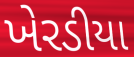
ખેરડીયા